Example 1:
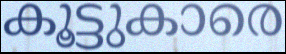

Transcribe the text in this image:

കൂട്ടുകാരെ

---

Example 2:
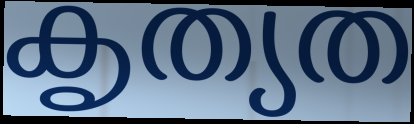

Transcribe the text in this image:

കൃത്യത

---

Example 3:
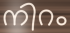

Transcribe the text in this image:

നിറം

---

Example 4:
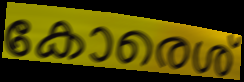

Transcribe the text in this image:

കോരെശ്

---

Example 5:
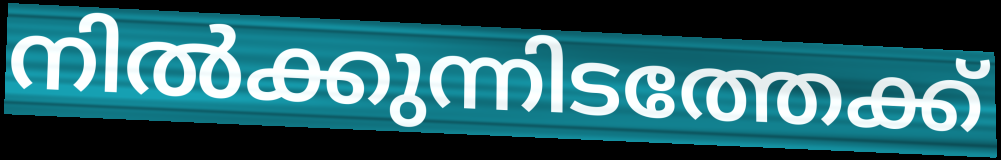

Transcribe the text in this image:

നിൽക്കുന്നിടത്തേക്ക്